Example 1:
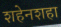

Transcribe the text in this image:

शहेनशहा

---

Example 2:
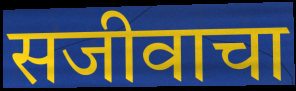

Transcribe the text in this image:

सजीवाचा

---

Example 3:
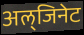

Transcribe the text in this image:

अल्जिनेट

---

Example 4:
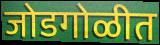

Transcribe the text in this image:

जोडगोळीत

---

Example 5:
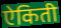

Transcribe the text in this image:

ऐकिती